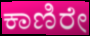
ಕಾಣಿರೇ